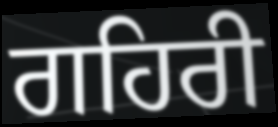
ਗਹਿਰੀ